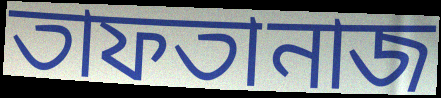
তাফতানাজ